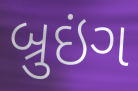
બ્રુઇંગ